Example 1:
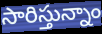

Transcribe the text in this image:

సారిస్తున్నాం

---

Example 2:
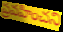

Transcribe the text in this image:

ప్రవహించని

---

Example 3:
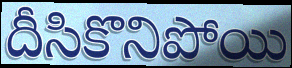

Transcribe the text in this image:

దీసికొనిపోయి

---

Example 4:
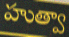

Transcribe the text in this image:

హుత్వా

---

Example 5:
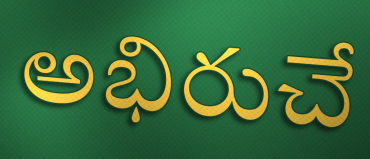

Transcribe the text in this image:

అభిరుచే